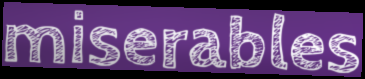
miserables